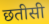
छतीसी